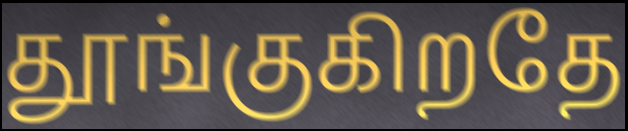
தூங்குகிறதே